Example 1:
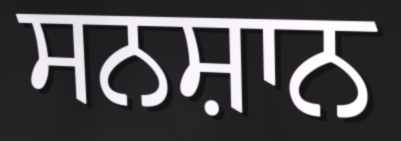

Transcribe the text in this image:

ਸਨਸ਼ਾਨ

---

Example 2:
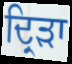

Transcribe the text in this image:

ਦ੍ਰਿੜਾ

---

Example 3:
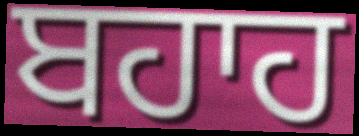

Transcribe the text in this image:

ਬਹਾਹ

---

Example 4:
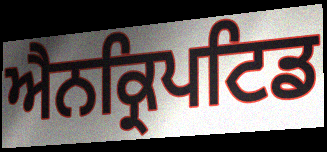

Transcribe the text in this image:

ਐਨਕ੍ਰਿਪਟਿਡ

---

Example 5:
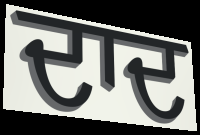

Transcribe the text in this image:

ਦਾਦ